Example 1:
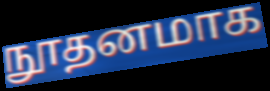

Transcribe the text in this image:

நூதனமாக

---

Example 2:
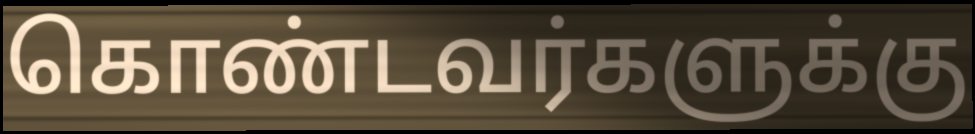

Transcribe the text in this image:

கொண்டவர்களுக்கு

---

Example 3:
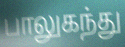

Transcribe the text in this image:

பாலுகந்து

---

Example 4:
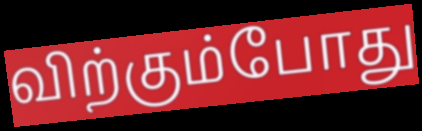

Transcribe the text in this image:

விற்கும்போது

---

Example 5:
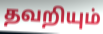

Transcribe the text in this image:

தவறியும்